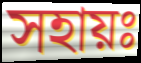
সহায়ঃ